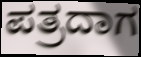
ಪತ್ರದಾಗ